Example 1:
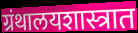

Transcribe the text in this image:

ग्रंथालयशास्त्रात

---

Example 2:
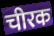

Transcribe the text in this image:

चीरक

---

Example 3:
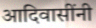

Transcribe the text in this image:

आदिवासींनी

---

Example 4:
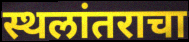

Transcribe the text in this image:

स्थलांतराचा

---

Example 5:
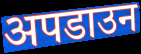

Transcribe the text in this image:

अपडाउन